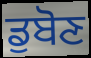
ਡੁਬੋਣ